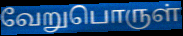
வேறுபொருள்